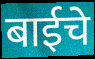
बाईचे